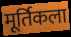
मूर्तिकला